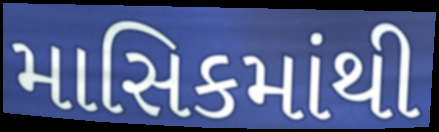
માસિકમાંથી